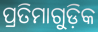
ପ୍ରତିମାଗୁଡ଼ିକ